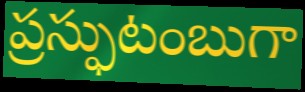
ప్రస్ఫుటంబుగా